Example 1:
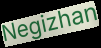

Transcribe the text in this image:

Negizhan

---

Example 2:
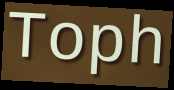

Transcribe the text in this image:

Toph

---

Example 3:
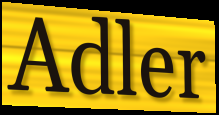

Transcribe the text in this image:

Adler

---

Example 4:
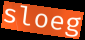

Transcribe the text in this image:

sloeg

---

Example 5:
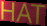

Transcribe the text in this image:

HAT